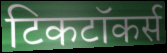
टिकटॉकर्स